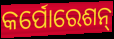
କର୍ପୋରେଶନ୍